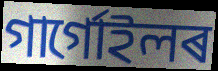
গাৰ্গোইলৰ